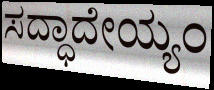
ಸದ್ಧಾದೇಯ್ಯಂ